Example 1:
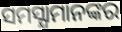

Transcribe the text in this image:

ସମସ୍ଯାମାନଙ୍କର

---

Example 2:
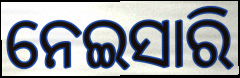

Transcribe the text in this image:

ନେଇସାରି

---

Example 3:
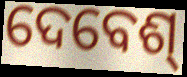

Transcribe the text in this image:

ଦେବେଶ୍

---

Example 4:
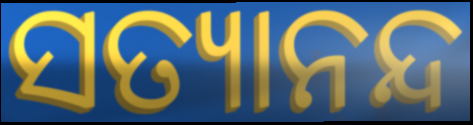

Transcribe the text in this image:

ସତ୍ୟାନନ୍ଦ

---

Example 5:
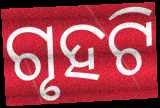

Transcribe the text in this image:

ଗୃହଟି